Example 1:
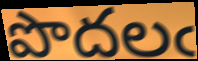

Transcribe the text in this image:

పొదలఁ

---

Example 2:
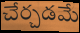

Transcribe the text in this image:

చేర్చడమే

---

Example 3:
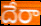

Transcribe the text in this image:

దేరా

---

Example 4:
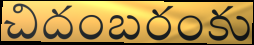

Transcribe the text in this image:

చిదంబరంకు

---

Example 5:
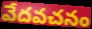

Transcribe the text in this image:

వేదవచనం